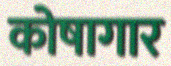
कोषागार